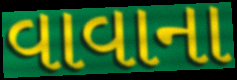
વાવાના